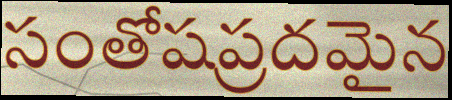
సంతోషప్రదమైన